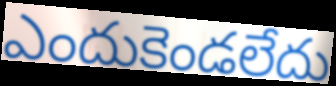
ఎందుకెండలేదు